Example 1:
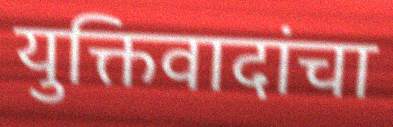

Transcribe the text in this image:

युक्तिवादांचा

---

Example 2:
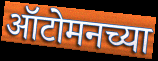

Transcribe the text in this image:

ऑटोमनच्या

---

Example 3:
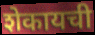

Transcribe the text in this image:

शेकायची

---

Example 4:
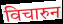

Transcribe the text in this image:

विचारुन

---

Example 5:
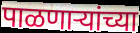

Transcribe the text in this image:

पाळणाऱ्यांच्या